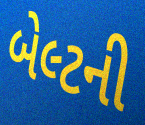
બેલ્ટની